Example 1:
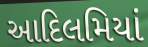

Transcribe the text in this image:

આદિલમિયાં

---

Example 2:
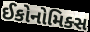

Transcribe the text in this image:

ઈકોનોમિક્સ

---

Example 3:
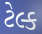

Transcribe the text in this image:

ટેલ્ક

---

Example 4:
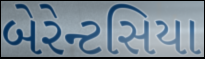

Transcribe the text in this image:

બેરેન્ટસિયા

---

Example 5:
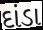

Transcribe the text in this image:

દાંડા